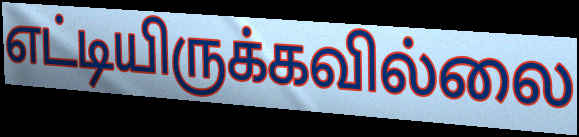
எட்டியிருக்கவில்லை